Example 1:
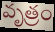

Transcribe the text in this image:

వృత్రం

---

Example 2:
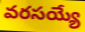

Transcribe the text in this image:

వరసయ్యే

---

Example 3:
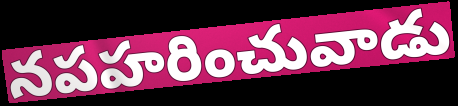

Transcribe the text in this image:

నపహరించువాడు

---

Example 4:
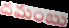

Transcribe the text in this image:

దమంబు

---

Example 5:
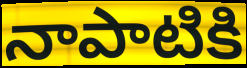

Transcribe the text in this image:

నాపాటికి